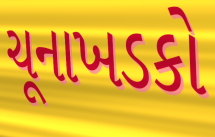
ચૂનાખડકો